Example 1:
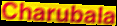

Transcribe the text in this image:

Charubala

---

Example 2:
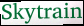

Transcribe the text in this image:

Skytrain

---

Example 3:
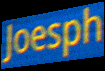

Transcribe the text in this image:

Joesph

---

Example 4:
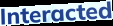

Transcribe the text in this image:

Interacted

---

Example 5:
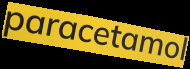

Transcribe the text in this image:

paracetamol